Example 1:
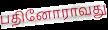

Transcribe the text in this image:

பதினோராவது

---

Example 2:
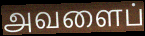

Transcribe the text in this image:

அவளைப்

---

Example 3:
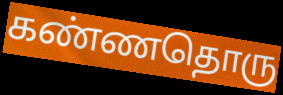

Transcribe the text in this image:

கண்ணதொரு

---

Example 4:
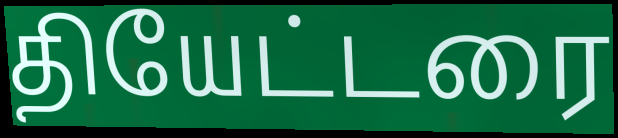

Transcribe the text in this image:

தியேட்டரை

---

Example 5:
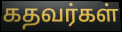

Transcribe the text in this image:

கதவர்கள்